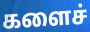
களைச்